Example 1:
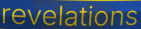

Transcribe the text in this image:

revelations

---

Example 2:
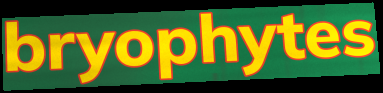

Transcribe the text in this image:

bryophytes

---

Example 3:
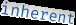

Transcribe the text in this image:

inherent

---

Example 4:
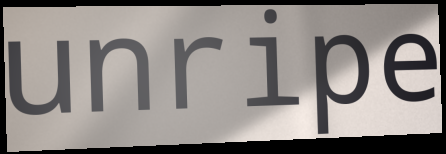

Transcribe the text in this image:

unripe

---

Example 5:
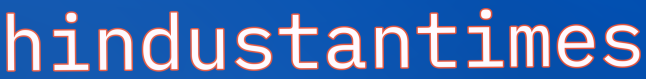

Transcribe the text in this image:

hindustantimes